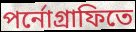
পর্নোগ্রাফিতে